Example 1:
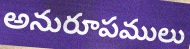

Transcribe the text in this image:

అనురూపములు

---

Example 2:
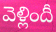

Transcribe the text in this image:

వెళ్లిందీ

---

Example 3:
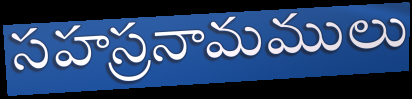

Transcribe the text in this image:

సహస్రనామములు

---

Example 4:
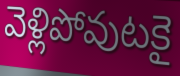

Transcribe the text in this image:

వెళ్లిపోవుటకై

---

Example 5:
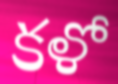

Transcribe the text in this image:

కళో